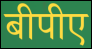
बीपीए